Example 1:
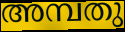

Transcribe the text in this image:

അമ്പതു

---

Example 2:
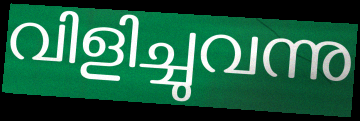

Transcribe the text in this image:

വിളിച്ചുവന്നു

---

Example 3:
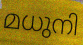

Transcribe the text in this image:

മധുനി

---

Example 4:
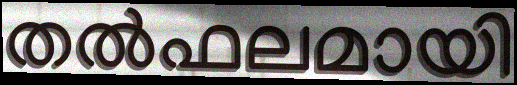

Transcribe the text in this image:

തൽഫലമായി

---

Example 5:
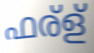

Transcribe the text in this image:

ഫര്ള്